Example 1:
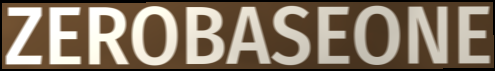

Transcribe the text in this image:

ZEROBASEONE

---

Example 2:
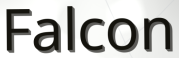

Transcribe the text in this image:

Falcon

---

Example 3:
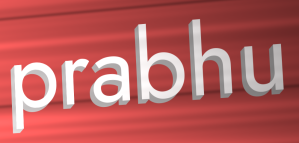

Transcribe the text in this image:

prabhu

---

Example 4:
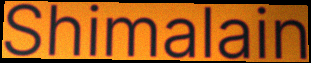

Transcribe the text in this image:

Shimalain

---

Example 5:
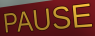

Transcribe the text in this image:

PAUSE